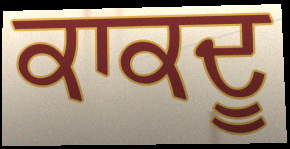
ਕਾਕਦੂ